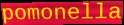
pomonella